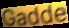
Gadde